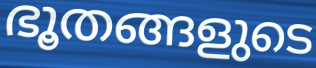
ഭൂതങ്ങളുടെ